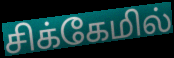
சிக்கேமில்